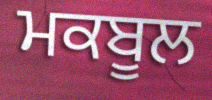
ਮਕਬੂਲ